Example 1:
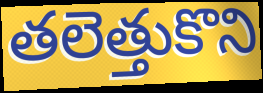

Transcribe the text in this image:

తలెత్తుకొని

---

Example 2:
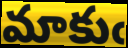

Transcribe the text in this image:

మాకుఁ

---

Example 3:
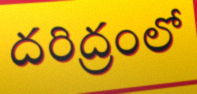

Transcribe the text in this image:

దరిద్రంలో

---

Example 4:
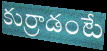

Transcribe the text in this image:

కుర్రాడంటే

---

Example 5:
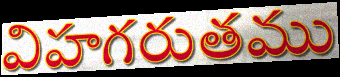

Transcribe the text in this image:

విహగరుతము